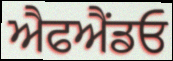
ਐਫਐਂਡਓ